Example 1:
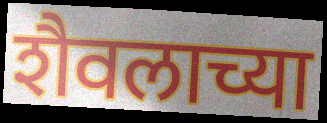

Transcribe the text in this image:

शैवलाच्या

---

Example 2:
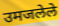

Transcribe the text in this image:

उमजलेले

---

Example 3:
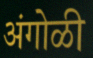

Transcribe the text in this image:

अंगोळी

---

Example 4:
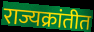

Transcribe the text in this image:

राज्यक्रांतीत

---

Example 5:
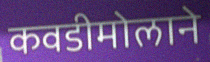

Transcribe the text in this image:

कवडीमोलाने